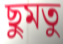
ছুমতু